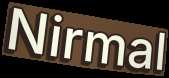
Nirmal